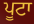
ਪੂਟਾ